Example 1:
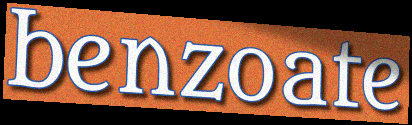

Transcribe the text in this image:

benzoate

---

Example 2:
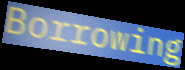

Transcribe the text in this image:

Borrowing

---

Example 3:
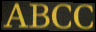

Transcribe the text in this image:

ABCC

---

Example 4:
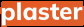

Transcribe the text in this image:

plaster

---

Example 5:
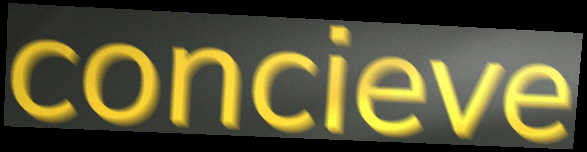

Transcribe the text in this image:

concieve